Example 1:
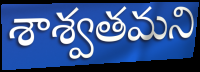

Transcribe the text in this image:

శాశ్వతమని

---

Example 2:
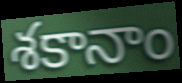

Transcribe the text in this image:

శకానాం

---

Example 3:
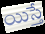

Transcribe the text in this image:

యిస్తే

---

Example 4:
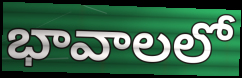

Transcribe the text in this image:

భావాలలో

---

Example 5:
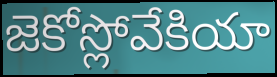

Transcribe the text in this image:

జెకోస్లోవేకియా